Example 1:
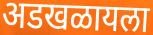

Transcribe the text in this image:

अडखळायला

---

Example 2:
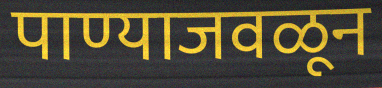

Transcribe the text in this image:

पाण्याजवळून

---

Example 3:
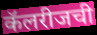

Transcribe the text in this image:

कॅलरीजची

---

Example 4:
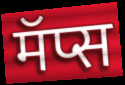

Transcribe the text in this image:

मॅप्स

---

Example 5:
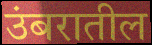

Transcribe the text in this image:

उंबरातील